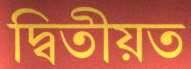
দ্বিতীয়ত